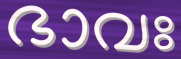
ഭാവഃ